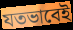
যতভাবেই